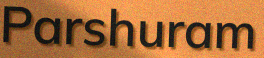
Parshuram